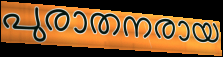
പുരാതനരായ